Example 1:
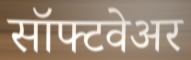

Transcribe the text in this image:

सॉफ्टवेअर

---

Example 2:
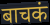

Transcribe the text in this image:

बाचकं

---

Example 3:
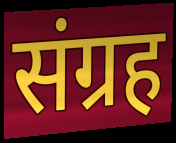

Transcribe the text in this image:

संग्रह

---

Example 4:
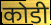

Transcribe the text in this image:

कोडी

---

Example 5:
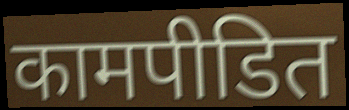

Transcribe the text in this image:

कामपीडित